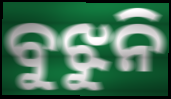
ବୁଝୁନି